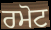
ਰਮੋਟ